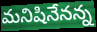
మనిషినేనన్న